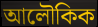
আলৌকিক